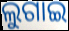
ଲୁଗାଇ